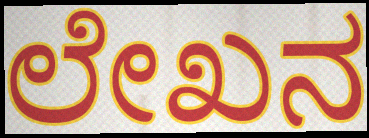
ಲೇಖನ